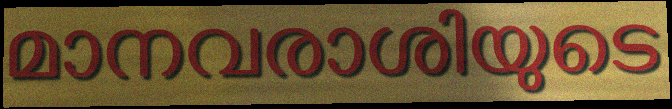
മാനവരാശിയുടെ